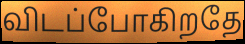
விடப்போகிறதே